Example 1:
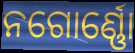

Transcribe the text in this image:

ନଗୋର୍ଣ୍ଣୋ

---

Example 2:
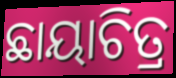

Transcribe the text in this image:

ଛାୟାଚିତ୍ର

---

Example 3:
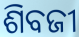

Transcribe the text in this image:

ଶିବଜୀ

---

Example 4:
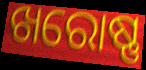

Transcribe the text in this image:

ଖରୋଷ୍ଣ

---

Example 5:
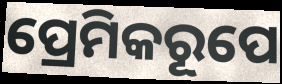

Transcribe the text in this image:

ପ୍ରେମିକରୂପେ